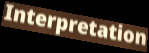
Interpretation